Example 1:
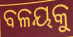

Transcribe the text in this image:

ବଳୟକୁ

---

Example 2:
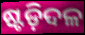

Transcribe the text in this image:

ଷ୍ଟଡ଼ିଦଳ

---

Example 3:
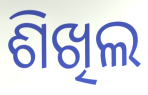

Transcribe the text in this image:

ଶିଖିଲ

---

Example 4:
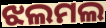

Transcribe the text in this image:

ଝଲମଲ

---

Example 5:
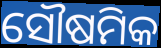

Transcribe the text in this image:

ସୌଷମିକ